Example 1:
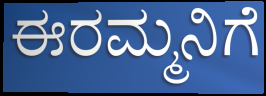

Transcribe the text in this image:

ಈರಮ್ಮನಿಗೆ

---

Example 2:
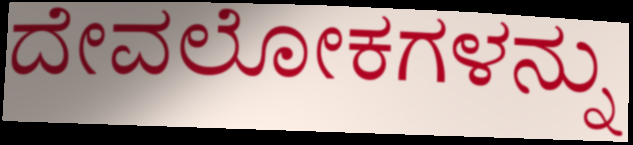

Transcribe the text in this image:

ದೇವಲೋಕಗಳನ್ನು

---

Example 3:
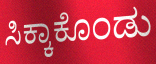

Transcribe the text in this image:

ಸಿಕ್ಕಾಕೊಂಡು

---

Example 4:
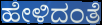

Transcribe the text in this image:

ಹೇಳಿದಂತೆ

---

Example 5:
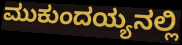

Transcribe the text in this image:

ಮುಕುಂದಯ್ಯನಲ್ಲಿ